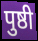
पुष्ठी